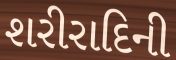
શરીરાદિની